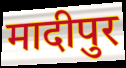
मादीपुर